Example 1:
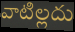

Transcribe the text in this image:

వాటిల్లదు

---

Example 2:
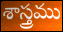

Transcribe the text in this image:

శాస్త్రము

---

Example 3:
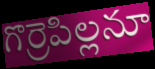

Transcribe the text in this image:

గొర్రెపిల్లనూ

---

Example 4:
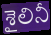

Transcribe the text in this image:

శైలినీ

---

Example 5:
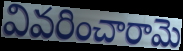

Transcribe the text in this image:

వివరించారామె